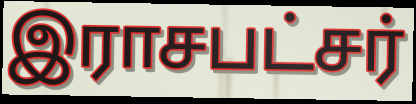
இராசபட்சர்